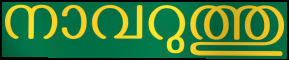
നാവറുത്തു